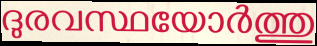
ദുരവസ്ഥയോർത്തു